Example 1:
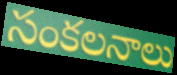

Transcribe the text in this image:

సంకలనాలు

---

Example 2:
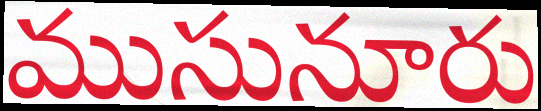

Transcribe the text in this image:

ముసునూరు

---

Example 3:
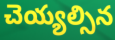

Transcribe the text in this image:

చెయ్యల్సిన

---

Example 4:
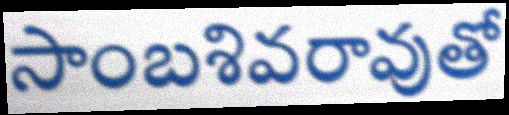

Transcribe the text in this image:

సాంబశివరావుతో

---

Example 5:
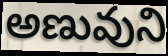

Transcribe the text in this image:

అణువుని